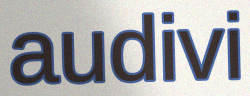
audivi